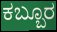
ಕಬ್ಬೂರ